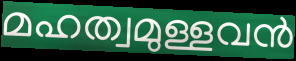
മഹത്വമുള്ളവൻ